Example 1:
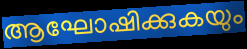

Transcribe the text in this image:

ആഘോഷിക്കുകയും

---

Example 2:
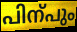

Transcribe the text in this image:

പിന്പും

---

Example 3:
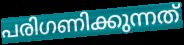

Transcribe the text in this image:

പരിഗണിക്കുന്നത്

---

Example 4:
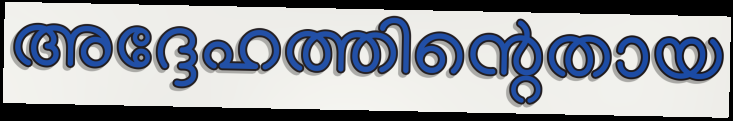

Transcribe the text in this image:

അദ്ദേഹത്തിന്റെതായ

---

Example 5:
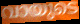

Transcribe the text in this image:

വായുടെ